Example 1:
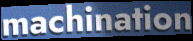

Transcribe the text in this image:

machination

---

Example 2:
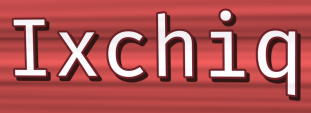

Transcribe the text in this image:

Ixchiq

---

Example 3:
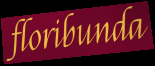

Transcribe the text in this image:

floribunda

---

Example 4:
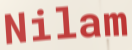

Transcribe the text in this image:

Nilam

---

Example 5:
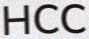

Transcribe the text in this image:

HCC